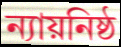
ন্যায়নিষ্ঠ